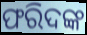
ଫରିଦଙ୍କ